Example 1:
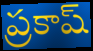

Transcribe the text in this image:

ప్రకాష్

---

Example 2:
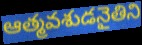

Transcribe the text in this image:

ఆత్మవశుడనైతిని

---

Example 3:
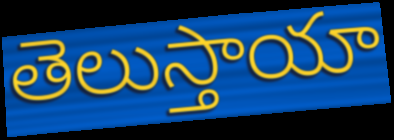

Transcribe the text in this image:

తెలుస్తాయా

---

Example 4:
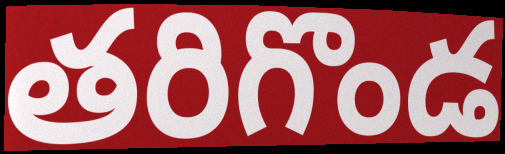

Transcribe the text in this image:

తరిగొండ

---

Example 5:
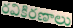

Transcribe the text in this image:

రవికిరణాలు